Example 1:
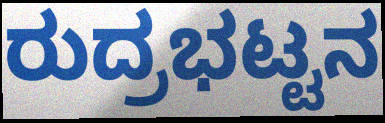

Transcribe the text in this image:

ರುದ್ರಭಟ್ಟನ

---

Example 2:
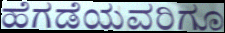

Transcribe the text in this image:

ಹೆಗಡೆಯವರಿಗೂ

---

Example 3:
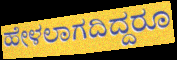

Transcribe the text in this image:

ಹೇಳಲಾಗದಿದ್ದರೂ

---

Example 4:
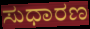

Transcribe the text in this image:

ಸುಧಾರಣ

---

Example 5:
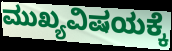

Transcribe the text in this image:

ಮುಖ್ಯವಿಷಯಕ್ಕೆ